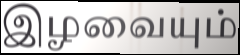
இழவையும்